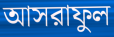
আসরাফুল